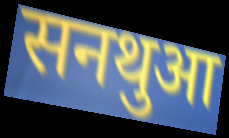
सनथुआ